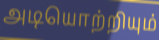
அடியொற்றியும்